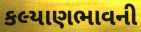
કલ્યાણભાવની